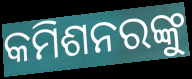
କମିଶନରଙ୍କୁ